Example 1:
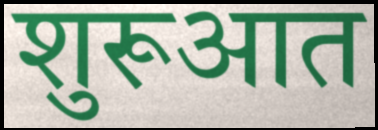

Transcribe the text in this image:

शुरूआत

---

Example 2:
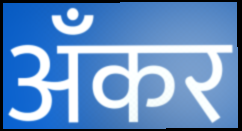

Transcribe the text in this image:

अँकर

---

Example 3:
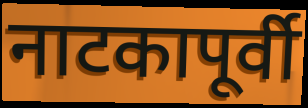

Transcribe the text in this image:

नाटकापूर्वी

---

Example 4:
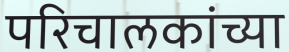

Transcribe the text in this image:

परिचालकांच्या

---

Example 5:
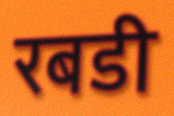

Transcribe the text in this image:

रबडी